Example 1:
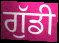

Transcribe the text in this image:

ਗੁੱਡੀ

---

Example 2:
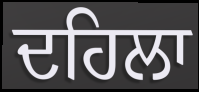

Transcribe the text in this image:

ਦਹਿਲਾ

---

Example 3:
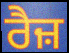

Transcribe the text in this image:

ਰੈਜ਼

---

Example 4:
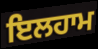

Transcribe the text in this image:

ਇਲਹਾਮ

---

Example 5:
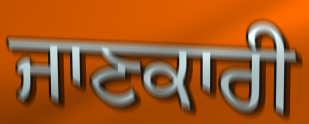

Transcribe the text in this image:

ਜਾਣਕਾਰੀ